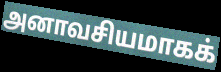
அனாவசியமாகக்